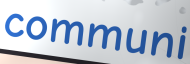
communi